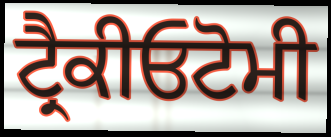
ਟ੍ਰੈਕੀਓਟੋਮੀ